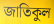
জাতিকুল